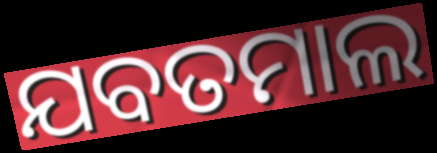
ଯବତମାଲ